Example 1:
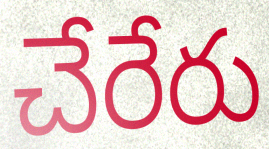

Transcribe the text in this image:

చేరేరు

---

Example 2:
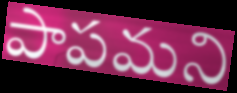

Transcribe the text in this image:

పాపమని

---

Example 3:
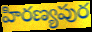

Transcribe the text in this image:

హిరణ్యపుర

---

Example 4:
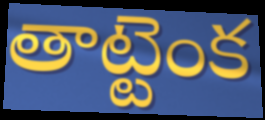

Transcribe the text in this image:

తాట్టెంక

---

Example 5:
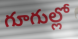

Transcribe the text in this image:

గూగుల్లో